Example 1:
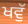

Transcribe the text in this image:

ਖਵੁੱ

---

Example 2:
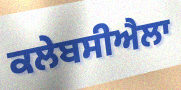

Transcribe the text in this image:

ਕਲੇਬਸੀਐਲਾ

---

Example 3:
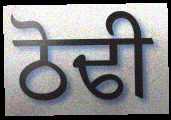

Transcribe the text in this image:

ਠੋਢੀ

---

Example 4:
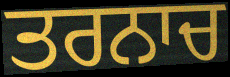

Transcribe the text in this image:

ਤਰਨਾਚ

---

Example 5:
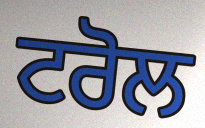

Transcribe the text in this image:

ਟਰੋਲ